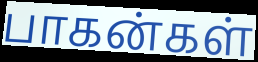
பாகன்கள்